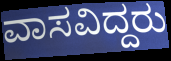
ವಾಸವಿದ್ದರು